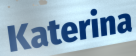
Katerina